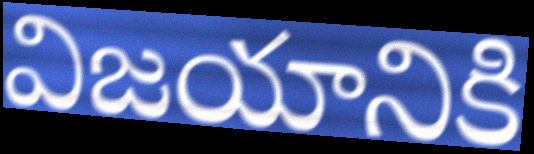
విజయానికి